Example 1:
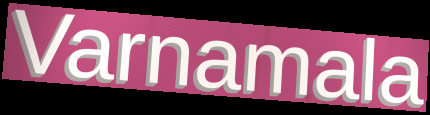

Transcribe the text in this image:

Varnamala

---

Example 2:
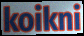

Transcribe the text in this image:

koikni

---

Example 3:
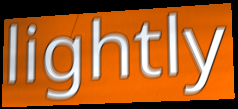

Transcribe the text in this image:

lightly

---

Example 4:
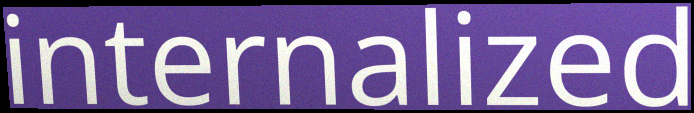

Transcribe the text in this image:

internalized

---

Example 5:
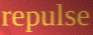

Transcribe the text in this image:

repulse